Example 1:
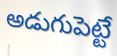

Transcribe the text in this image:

అడుగుపెట్టే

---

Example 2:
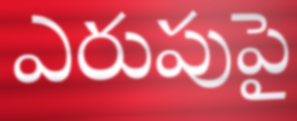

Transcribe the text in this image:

ఎరుపుపై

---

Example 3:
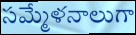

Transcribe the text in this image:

సమ్మేళనాలుగా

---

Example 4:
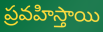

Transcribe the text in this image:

ప్రవహిస్తాయి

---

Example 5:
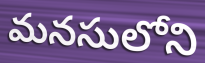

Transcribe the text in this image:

మనసులోని